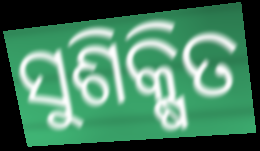
ସୁଶିକ୍ଷିତ